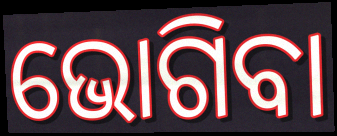
ଭୋଗିବା